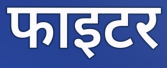
फाइटर